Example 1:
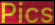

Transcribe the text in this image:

Pics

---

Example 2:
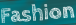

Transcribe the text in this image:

Fashion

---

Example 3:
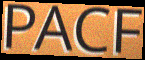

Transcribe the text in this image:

PACF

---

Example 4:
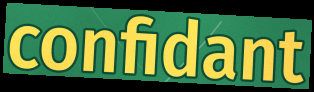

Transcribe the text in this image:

confidant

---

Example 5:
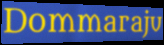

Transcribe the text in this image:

Dommaraju